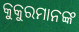
କୁକୁରମାନଙ୍କ